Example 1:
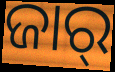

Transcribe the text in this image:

ଜାର୍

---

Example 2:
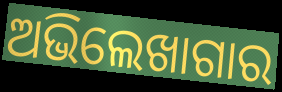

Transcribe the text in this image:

ଅଭିଲେଖାଗାର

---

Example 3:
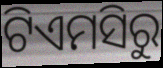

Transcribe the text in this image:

ଟିଏମସିରୁ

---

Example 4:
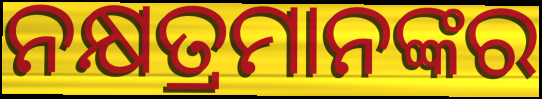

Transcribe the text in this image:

ନକ୍ଷତ୍ରମାନଙ୍କର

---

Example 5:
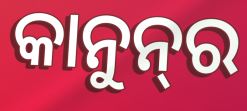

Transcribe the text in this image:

କାନୁନ୍‌ର